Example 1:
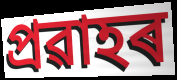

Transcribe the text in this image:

প্ৰৱাহৰ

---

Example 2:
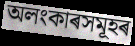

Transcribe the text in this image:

অলংকাৰসমূহৰ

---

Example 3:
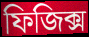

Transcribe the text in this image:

ফিজিক্স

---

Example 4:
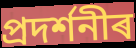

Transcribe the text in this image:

প্ৰদৰ্শনীৰ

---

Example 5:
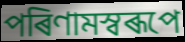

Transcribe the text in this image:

পৰিণামস্বৰূপে